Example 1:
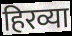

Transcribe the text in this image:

हिरव्या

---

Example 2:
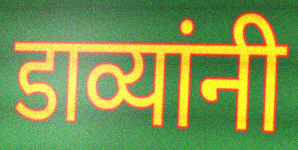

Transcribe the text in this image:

डाव्यांनी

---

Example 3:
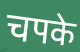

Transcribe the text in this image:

चपके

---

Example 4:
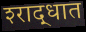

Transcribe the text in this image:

श्राद्धात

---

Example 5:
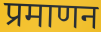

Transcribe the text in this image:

प्रमाणन